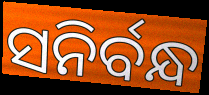
ସନିର୍ବନ୍ଧ